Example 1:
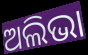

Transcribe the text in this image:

ଅଲିଭା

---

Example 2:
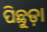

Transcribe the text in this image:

ପିଛୁଡ଼ା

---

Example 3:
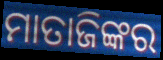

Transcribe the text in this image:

ମାତାଜିଙ୍କର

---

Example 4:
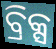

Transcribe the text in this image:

ବ୍ରିକ୍ସ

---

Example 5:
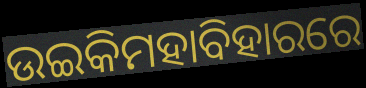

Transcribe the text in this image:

ଉଇକିମହାବିହାରରେ